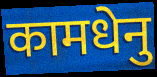
कामधेनु